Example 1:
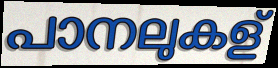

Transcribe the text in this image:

പാനലുകള്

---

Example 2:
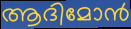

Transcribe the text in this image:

ആദിമോൻ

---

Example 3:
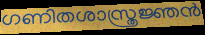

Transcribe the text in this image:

ഗണിതശാസ്ത്രജ്ഞൻ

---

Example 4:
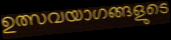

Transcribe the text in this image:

ഉത്സവയാഗങ്ങളുടെ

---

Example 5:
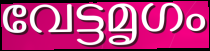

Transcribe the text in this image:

വേട്ടമൃഗം